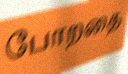
போறதை